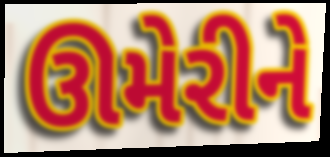
ઊમેરીને